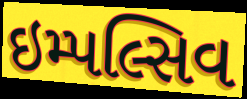
ઇમ્પલ્સિવ